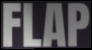
FLAP